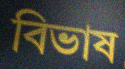
বিভাষ